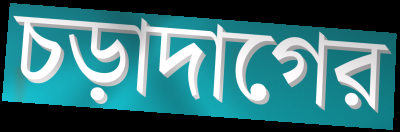
চড়াদাগের